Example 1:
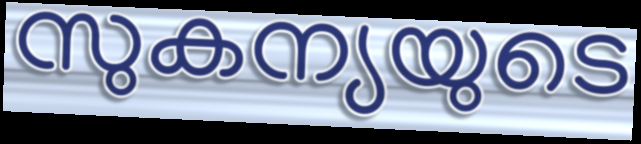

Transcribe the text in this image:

സുകന്യയുടെ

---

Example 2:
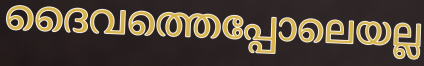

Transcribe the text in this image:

ദൈവത്തെപ്പോലെയല്ല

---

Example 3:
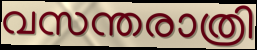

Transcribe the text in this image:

വസന്തരാത്രി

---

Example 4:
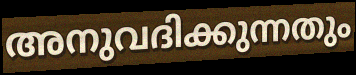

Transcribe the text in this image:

അനുവദിക്കുന്നതും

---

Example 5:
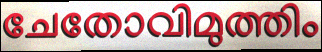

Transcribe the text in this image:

ചേതോവിമുത്തിം